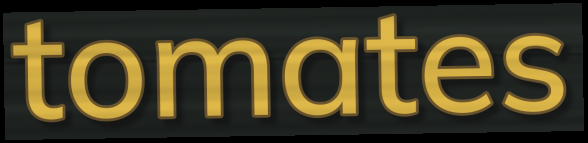
tomates